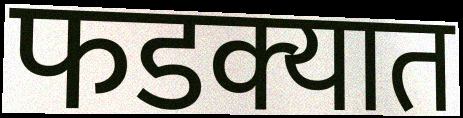
फडक्‍यात